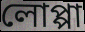
লোপ্পা